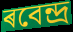
ৰবেন্দ্ৰ